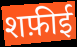
शफ़ीई